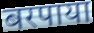
बरपाया